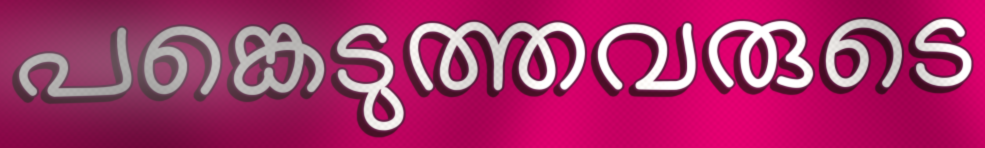
പങ്കെടുത്തവരുടെ